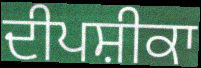
ਦੀਪਸ਼ੀਕਾ